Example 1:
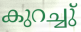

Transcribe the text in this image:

കുറച്ചു്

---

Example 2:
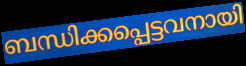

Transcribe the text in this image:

ബന്ധിക്കപ്പെട്ടവനായി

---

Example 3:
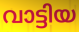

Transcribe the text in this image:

വാട്ടിയ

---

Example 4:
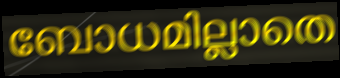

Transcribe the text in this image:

ബോധമില്ലാതെ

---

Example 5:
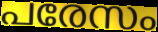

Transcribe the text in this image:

പരേസം